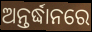
ଅନ୍ତର୍ଦ୍ଧାନରେ